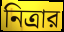
নিত্রার